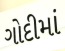
ગોદીમાં